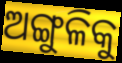
ଅଙ୍ଗୁଳିକୁ